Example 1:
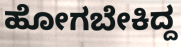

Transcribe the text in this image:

ಹೋಗಬೇಕಿದ್ದ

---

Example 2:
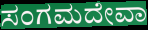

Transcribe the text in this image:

ಸಂಗಮದೇವಾ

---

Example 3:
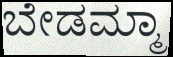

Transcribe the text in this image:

ಬೇಡಮ್ಮಾ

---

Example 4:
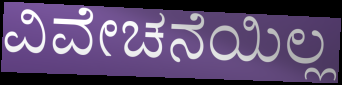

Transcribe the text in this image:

ವಿವೇಚನೆಯಿಲ್ಲ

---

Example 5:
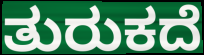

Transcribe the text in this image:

ತುರುಕದೆ